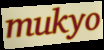
mukyo